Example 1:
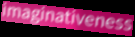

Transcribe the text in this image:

imaginativeness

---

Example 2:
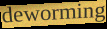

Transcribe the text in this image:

deworming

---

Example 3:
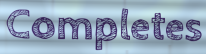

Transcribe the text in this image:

Completes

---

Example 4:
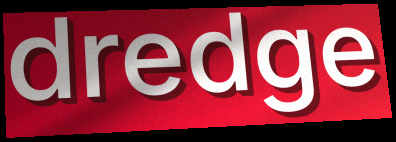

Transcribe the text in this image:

dredge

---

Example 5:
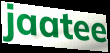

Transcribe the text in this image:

jaatee